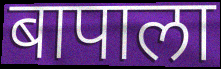
बापाला